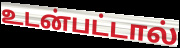
உடன்பட்டால்